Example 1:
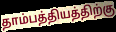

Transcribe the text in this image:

தாம்பத்தியத்திற்கு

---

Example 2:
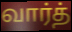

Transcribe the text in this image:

வார்த்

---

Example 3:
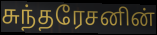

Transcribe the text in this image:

சுந்தரேசனின்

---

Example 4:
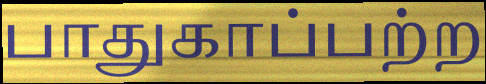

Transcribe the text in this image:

பாதுகாப்பற்ற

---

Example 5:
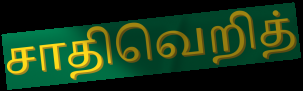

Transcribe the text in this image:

சாதிவெறித்